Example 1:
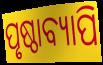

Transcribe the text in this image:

ପୃଷ୍ଠାବ୍ୟାପି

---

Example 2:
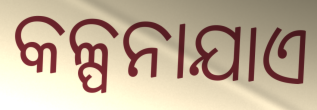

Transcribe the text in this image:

କଳ୍ପନାଯାଏ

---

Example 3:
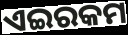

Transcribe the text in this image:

ଏଇରକମ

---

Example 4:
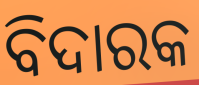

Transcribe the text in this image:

ବିଦାରକ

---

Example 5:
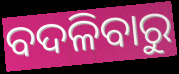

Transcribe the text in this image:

ବଦଳିବାରୁ